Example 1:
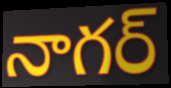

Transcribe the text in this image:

నాగర్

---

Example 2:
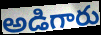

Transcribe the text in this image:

అడిగారు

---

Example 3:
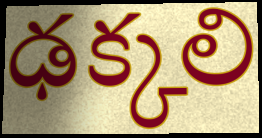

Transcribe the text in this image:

ఢక్కలి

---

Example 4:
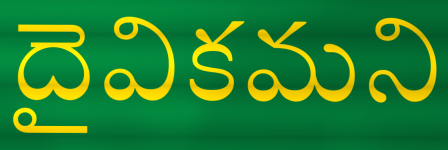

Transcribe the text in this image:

దైవికమని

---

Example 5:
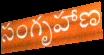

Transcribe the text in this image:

సంగృహాణ